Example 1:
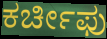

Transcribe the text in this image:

ಕರ್ಚೀಫು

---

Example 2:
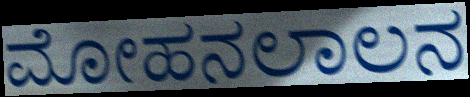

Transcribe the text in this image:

ಮೋಹನಲಾಲನ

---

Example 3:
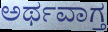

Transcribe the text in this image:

ಅರ್ಥವಾಗ್ತ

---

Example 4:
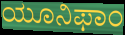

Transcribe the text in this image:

ಯೂನಿಫಾಂ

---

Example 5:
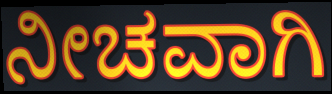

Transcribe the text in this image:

ನೀಚವಾಗಿ